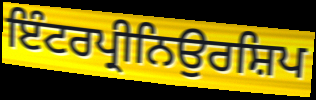
ਇੰਟਰਪ੍ਰੀਨਿਉਰਸ਼ਿਪ